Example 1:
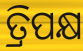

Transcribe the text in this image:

ତ୍ରିପକ୍ଷ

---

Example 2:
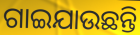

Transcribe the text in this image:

ଗାଇଯାଉଛନ୍ତି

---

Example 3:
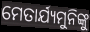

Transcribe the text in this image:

ମେତାର୍ଯ୍ୟମୁନିଙ୍କୁ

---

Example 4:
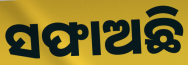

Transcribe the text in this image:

ସଫାଅଛି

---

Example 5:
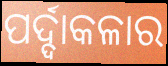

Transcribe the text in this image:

ପର୍ଦ୍ଦାକଳାର